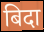
बिदा